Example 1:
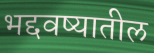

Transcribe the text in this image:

भद्दवष्यातील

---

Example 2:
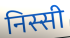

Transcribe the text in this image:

निस्सी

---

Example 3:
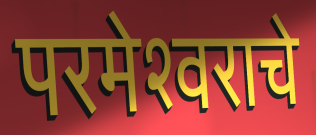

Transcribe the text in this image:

परमेश्वराचे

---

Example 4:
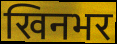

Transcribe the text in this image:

खिनभर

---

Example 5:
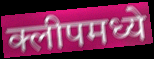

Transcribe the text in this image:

क्लीपमध्ये